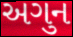
અગુન